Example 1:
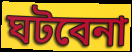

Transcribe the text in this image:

ঘটবেনা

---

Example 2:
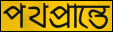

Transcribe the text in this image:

পথপ্রান্তে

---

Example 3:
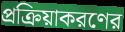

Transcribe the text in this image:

প্রক্রিয়াকরণের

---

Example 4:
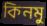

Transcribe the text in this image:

কিনমু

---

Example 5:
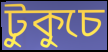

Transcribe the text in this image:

টুকুচে